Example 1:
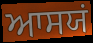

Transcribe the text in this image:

ਆਸਯਂ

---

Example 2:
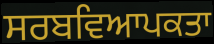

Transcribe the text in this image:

ਸਰਬਵਿਆਪਕਤਾ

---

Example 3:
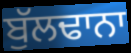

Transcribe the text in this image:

ਬੁੱਲਢਾਨਾ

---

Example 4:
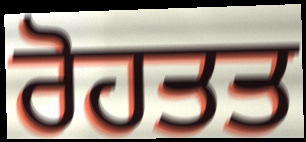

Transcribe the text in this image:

ਰੋਹਤਤ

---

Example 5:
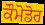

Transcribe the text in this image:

ਕੌਮੋਡੋਰ